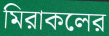
মিরাকলের